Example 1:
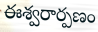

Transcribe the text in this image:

ఈశ్వరార్పణం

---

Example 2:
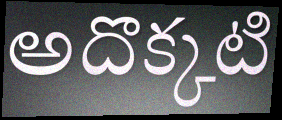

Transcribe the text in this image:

అదొక్కటి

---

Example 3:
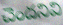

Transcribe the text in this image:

చెందనివి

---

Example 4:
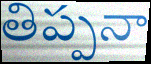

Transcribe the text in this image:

తిప్పనా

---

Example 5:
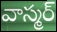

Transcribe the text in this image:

వాస్మర్